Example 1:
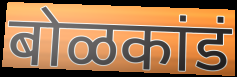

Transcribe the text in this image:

बोळकांडं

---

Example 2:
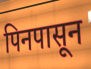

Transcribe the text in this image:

पिनपासून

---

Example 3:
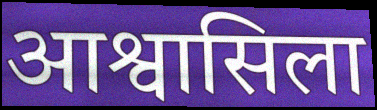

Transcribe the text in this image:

आश्वासिला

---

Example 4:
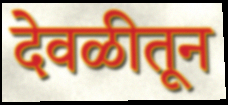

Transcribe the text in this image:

देवळीतून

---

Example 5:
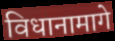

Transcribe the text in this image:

विधानामागे